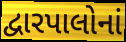
દ્વારપાલોનાં